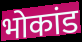
भोकांड